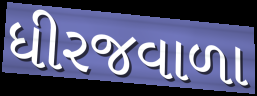
ધીરજવાળા